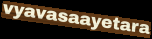
vyavasaayetara